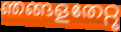
ഞങ്ങളതേറ്റു